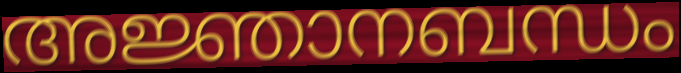
അജ്ഞാനബന്ധം